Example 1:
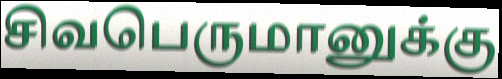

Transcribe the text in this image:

சிவபெருமானுக்கு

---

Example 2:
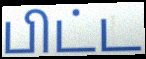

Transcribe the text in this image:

பிட்ட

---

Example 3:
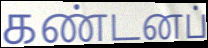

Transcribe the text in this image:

கண்டனப்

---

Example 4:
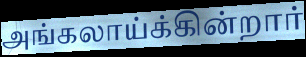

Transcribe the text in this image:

அங்கலாய்க்கின்றார்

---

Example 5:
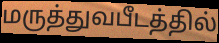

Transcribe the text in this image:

மருத்துவபீடத்தில்